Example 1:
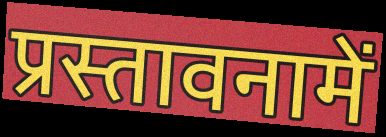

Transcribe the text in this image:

प्रस्तावनामें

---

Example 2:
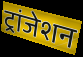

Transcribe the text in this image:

ट्रांजेशन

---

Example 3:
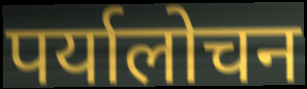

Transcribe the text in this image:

पर्यालोचन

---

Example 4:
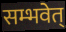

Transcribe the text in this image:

सम्भवेत्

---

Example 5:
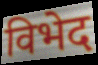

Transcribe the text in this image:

विभेद